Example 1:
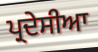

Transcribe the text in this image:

ਪ੍ਰਦੇਸੀਆ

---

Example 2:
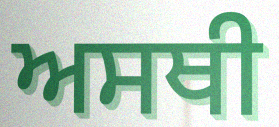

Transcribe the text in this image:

ਅਸਥੀ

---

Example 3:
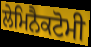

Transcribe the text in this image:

ਲੇਮਿਨੈਕਟੋਮੀ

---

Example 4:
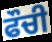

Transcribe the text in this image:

ਫੌਚੀ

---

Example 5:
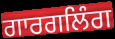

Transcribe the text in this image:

ਗਾਰਗਲਿੰਗ